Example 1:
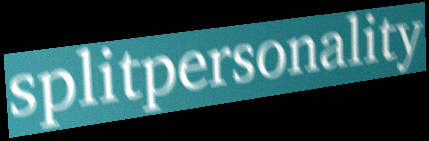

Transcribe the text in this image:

splitpersonality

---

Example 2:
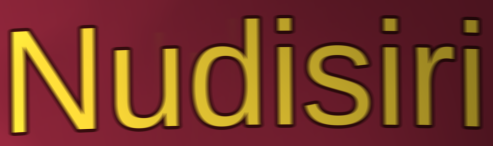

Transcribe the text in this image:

Nudisiri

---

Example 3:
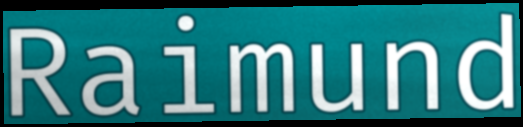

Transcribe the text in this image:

Raimund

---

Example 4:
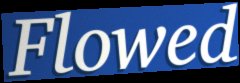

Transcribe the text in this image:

Flowed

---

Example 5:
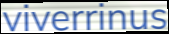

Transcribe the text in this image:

viverrinus